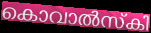
കൊവാൽസ്‌കി